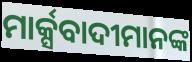
ମାର୍କ୍ସବାଦୀମାନଙ୍କ